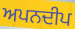
ਅਪਨਦੀਪ